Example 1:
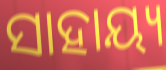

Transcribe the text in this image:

ସାହାୟ୍ୟ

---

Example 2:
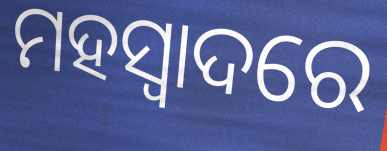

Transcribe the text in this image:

ମହସ୍ୱାଦରେ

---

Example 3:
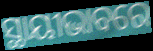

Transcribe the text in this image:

ସ୍ଥାୟୀଭାବରେ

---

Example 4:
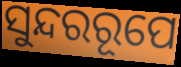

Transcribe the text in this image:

ସୁନ୍ଦରରୂପେ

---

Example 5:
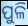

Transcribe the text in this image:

ପୁଳି